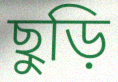
ছুড়ি